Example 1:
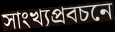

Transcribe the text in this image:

সাংখ্যপ্রবচনে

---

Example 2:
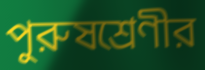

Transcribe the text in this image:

পুরুষশ্রেণীর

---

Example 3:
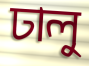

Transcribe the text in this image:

ঢালু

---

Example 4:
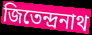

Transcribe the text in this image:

জিতেন্দ্রনাথ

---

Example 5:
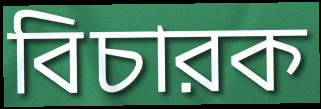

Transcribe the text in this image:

বিচারক